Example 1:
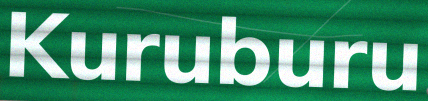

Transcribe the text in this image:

Kuruburu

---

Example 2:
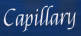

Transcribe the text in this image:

Capillary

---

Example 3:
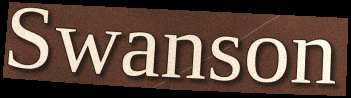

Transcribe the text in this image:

Swanson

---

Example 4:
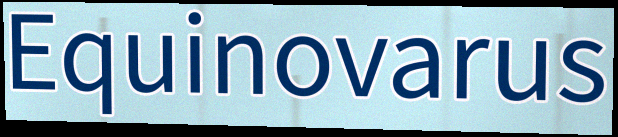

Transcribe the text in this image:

Equinovarus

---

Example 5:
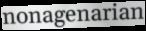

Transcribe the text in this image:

nonagenarian